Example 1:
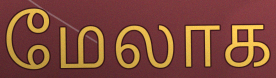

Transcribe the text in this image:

மேலாக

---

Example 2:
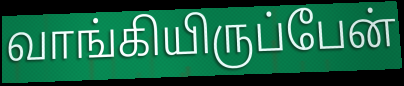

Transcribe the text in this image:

வாங்கியிருப்பேன்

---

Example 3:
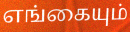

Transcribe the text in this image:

எங்கையும்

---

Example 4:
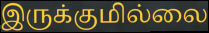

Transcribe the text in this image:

இருக்குமில்லை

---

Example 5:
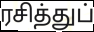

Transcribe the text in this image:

ரசித்துப்